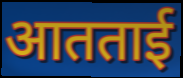
आतताई